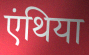
एंथिया